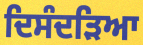
ਦਿਸੰਦੜਿਆ